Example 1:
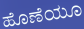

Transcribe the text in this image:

ಹೊಣೆಯೂ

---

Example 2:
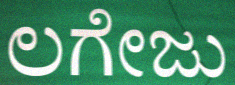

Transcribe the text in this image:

ಲಗೇಜು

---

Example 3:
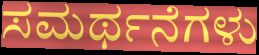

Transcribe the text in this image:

ಸಮರ್ಥನೆಗಳು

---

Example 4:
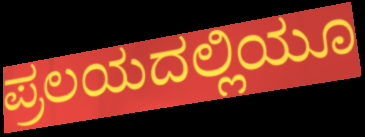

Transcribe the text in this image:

ಪ್ರಲಯದಲ್ಲಿಯೂ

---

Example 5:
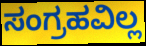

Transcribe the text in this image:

ಸಂಗ್ರಹವಿಲ್ಲ